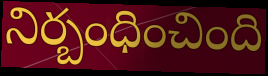
నిర్బంధించింది